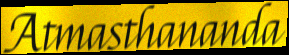
Atmasthananda